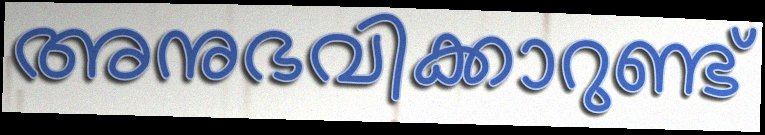
അനുഭവിക്കാറുണ്ട്